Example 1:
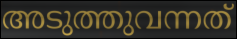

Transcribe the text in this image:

അടുത്തുവന്നത്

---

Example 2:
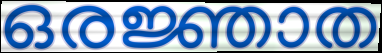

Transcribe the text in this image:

ഒരജ്ഞാത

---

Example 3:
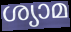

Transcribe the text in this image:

ശ്യാമ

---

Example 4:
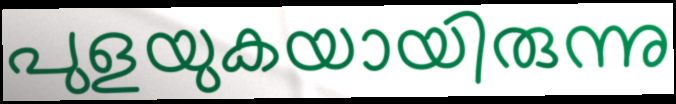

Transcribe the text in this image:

പുളയുകയായിരുന്നു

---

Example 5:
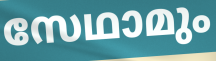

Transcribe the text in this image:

സേഥാമും